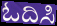
ಓದಿಸಿ